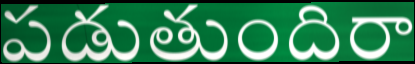
పడుతుందిరా